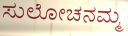
ಸುಲೋಚನಮ್ಮ